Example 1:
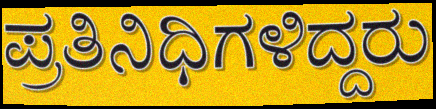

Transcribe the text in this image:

ಪ್ರತಿನಿಧಿಗಳಿದ್ದರು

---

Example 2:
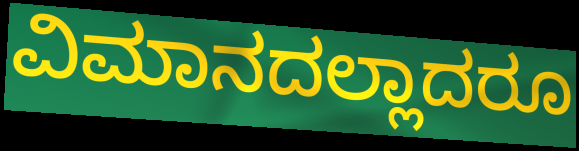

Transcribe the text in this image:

ವಿಮಾನದಲ್ಲಾದರೂ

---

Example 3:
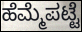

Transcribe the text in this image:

ಹೆಮ್ಮೆಪಟ್ಟೆ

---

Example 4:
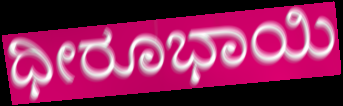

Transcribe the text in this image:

ಧೀರೂಭಾಯಿ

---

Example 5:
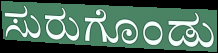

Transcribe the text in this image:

ಸುರುಗೊಂಡು